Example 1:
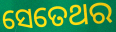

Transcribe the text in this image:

ସେତେଥର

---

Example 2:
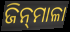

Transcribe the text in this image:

ଜିନ୍‌ମାଳା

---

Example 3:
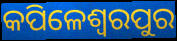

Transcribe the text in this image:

କପିଳେଶ୍ୱରପୁର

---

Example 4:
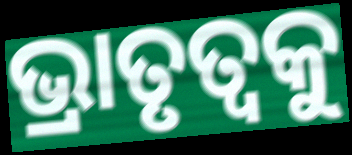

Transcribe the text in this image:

ଭ୍ରାତୃତ୍ୱକୁ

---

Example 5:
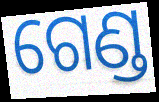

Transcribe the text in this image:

ଗେଣ୍ଡ